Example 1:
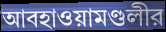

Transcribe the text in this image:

আবহাওয়ামণ্ডলীর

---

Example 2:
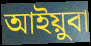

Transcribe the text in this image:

আইয়ুবা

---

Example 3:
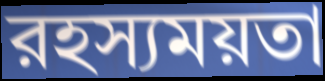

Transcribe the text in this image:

রহস্যময়তা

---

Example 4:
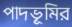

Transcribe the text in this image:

পাদভূমির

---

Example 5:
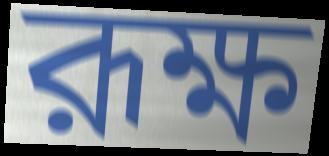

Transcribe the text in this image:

রূক্ষ